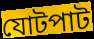
যোটপাট